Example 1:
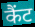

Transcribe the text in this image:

कैंट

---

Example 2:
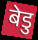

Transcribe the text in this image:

बेडु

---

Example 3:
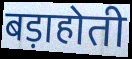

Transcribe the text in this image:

बड़ाहोती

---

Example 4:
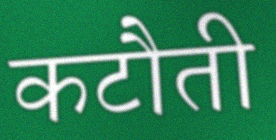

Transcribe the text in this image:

कटौती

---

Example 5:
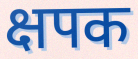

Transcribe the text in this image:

क्षपक